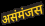
असंमंजस